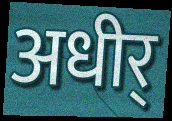
अधीर्